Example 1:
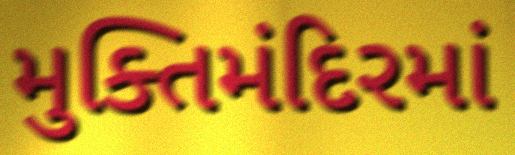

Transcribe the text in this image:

મુક્તિમંદિરમાં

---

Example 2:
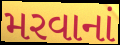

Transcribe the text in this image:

મરવાનાં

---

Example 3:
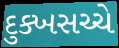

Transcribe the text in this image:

દુક્ખસચ્ચે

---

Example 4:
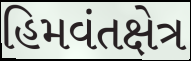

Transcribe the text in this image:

હિમવંતક્ષેત્ર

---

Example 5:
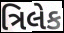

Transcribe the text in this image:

ત્રિલેક